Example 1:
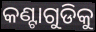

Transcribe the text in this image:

କଣ୍ଟାଗୁଡିକୁ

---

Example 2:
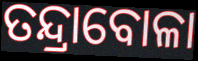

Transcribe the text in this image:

ତନ୍ଦ୍ରାବୋଳା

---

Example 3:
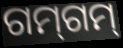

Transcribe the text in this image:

ଗମ୍‌ଗମ୍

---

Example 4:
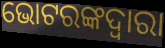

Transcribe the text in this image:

ଭୋଟରଙ୍କଦ୍ଵାରା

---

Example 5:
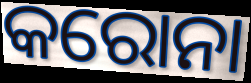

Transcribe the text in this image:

କରୋନା